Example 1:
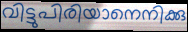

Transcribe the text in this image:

വിട്ടുപിരിയാനെനിക്കു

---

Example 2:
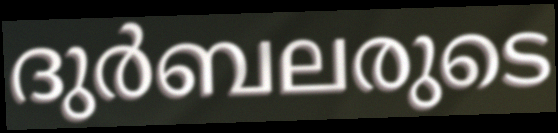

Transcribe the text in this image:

ദുർബലരുടെ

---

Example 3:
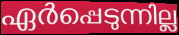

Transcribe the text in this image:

ഏർപ്പെടുന്നില്ല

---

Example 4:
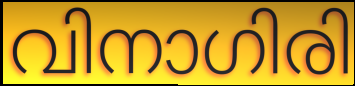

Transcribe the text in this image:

വിനാഗിരി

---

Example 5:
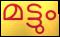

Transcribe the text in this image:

മട്ടും